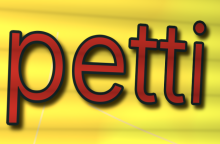
petti